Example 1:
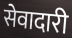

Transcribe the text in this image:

सेवादारी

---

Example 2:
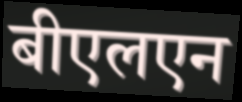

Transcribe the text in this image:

बीएलएन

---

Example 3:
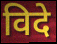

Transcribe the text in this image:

विदे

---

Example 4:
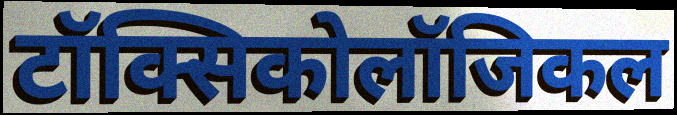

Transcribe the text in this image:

टॉक्सिकोलॉजिकल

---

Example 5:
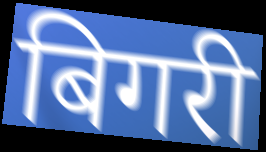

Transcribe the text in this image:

बिगरी